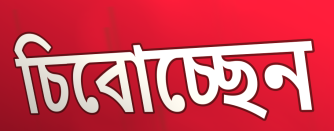
চিবোচ্ছেন